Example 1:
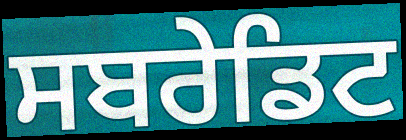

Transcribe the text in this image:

ਸਬਰੇਡਿਟ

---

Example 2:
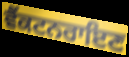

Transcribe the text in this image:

ਵੈਂਕਟਨਰਾਇਣ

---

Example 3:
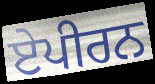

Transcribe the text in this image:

ਏਪੀਰਨ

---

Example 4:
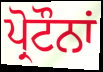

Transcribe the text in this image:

ਪ੍ਰੋਟੌਨਾਂ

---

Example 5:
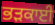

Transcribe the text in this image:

ਭੜਕਾਈ